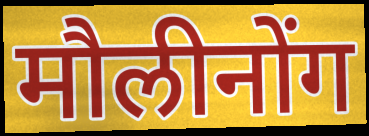
मौलीनोंग